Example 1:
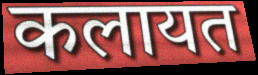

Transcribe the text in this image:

कलायत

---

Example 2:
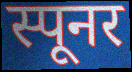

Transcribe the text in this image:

स्पूनर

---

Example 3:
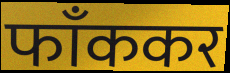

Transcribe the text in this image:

फाँककर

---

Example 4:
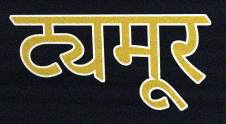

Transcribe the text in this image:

ट्यमूर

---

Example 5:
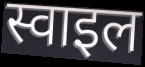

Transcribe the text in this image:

स्वाइल